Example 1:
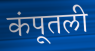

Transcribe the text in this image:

कंपूतली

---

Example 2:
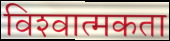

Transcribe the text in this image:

विश्वात्मकता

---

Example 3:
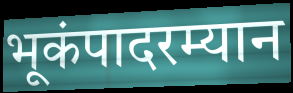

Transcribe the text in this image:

भूकंपादरम्यान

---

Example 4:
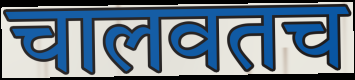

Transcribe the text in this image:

चालवतच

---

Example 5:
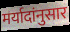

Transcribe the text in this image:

मर्यादांनुसार